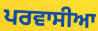
ਪਰਵਾਸੀਆ